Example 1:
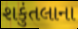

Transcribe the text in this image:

શકુંતલાના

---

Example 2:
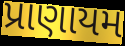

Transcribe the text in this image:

પ્રાણાયમ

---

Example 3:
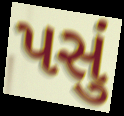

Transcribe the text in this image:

પસું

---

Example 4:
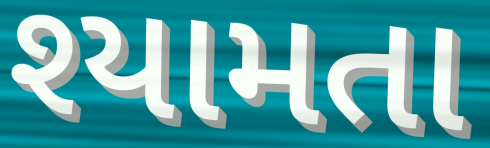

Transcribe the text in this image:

શ્યામતા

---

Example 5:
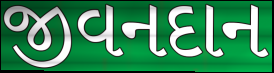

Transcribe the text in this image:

જીવનદાન